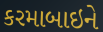
કરમાબાઇને